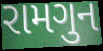
રામગુન